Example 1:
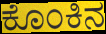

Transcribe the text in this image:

ಕೊಂಕಿನ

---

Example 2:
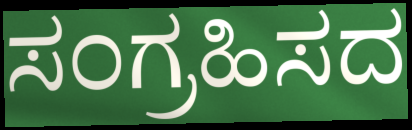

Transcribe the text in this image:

ಸಂಗ್ರಹಿಸದ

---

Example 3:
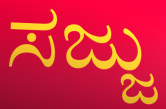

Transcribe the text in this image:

ಸಜ್ಜು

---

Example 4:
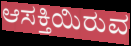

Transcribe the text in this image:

ಆಸಕ್ತಿಯಿರುವ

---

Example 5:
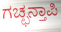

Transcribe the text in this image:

ಗಚ್ಛನ್ತಾಪಿ